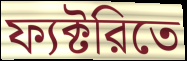
ফ্যক্টরিতে